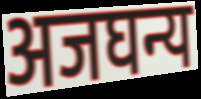
अजघन्य